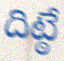
దిట్ఠే